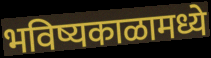
भविष्यकाळामध्ये